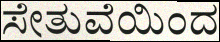
ಸೇತುವೆಯಿಂದ